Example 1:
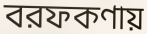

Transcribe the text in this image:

বরফকণায়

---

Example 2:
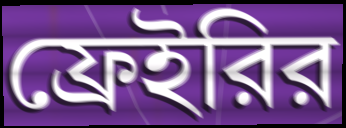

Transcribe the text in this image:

ফ্রেইরির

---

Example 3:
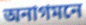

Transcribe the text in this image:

অনাগমনে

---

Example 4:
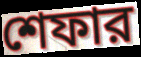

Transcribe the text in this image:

শেফার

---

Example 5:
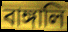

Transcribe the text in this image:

বাঙ্গালি